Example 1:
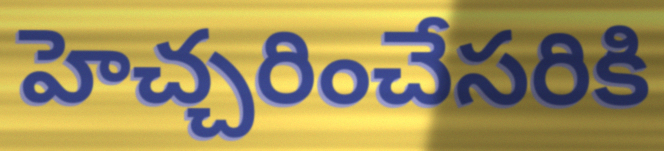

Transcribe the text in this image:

హెచ్చరించేసరికి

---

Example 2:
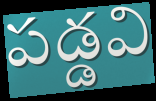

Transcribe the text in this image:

పడ్డవి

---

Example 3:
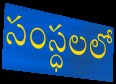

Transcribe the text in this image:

సంస్ధలలో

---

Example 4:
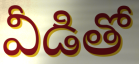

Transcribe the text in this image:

వీడితో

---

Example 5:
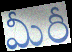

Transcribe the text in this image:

మీరీ